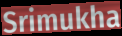
Srimukha